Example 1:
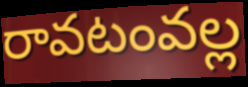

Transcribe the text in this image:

రావటంవల్ల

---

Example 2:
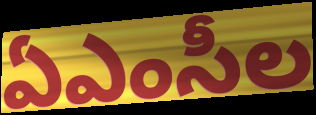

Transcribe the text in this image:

ఏఎంసీల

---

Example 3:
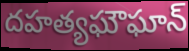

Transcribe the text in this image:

దహత్యఘౌఘాన్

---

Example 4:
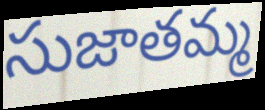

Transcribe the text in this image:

సుజాతమ్మ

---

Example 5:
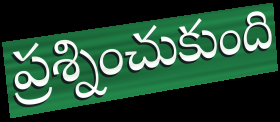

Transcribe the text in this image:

ప్రశ్నించుకుంది